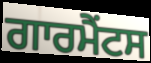
ਗਾਰਮੈਂਟਸ